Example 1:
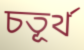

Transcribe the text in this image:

চতূর্থ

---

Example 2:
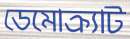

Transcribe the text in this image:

ডেমোক্র্যাট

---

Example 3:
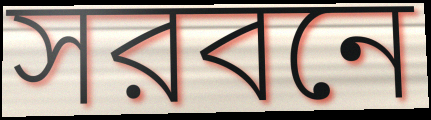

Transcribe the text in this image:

সরবনে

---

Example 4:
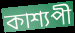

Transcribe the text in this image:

কাশ্যপী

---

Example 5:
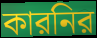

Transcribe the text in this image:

কারনির